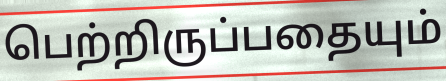
பெற்றிருப்பதையும்